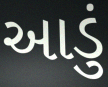
આડું